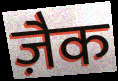
ज़ैक